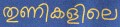
തുണികളിലെ